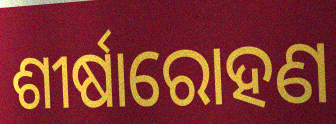
ଶୀର୍ଷାରୋହଣ